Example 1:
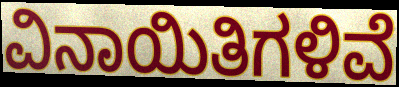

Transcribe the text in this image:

ವಿನಾಯಿತಿಗಳಿವೆ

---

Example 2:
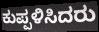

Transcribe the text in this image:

ಕುಪ್ಪಳಿಸಿದರು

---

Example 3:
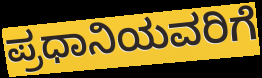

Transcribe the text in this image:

ಪ್ರಧಾನಿಯವರಿಗೆ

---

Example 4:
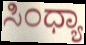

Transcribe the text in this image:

ಸಿಂಧ್ಯಾ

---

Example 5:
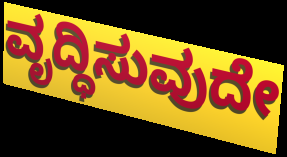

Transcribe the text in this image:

ವೃದ್ಧಿಸುವುದೇ